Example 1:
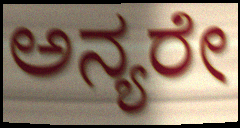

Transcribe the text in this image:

ಅನ್ಯರೇ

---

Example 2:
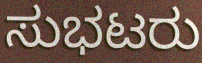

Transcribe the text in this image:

ಸುಭಟರು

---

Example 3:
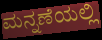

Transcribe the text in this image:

ಮನ್ನಣೆಯಲ್ಲಿ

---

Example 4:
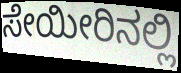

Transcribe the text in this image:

ಸೇಯೀರಿನಲ್ಲಿ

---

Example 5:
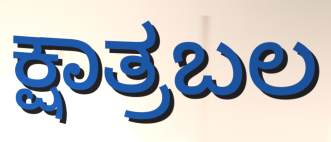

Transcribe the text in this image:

ಕ್ಷಾತ್ರಬಲ